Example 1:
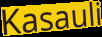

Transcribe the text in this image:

Kasauli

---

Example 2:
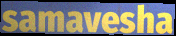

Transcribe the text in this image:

samavesha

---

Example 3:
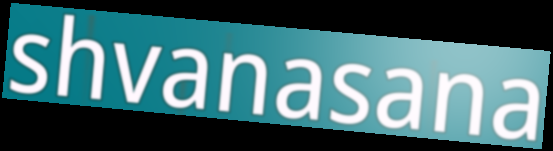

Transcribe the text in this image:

shvanasana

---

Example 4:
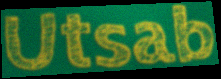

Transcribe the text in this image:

Utsab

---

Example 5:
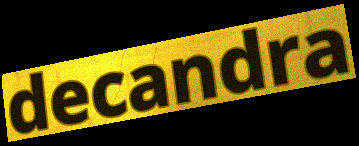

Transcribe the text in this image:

decandra